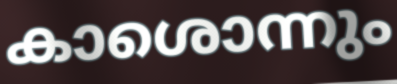
കാശൊന്നും